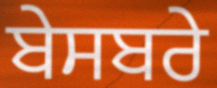
ਬੇਸਬਰੇ